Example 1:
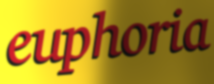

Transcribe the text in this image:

euphoria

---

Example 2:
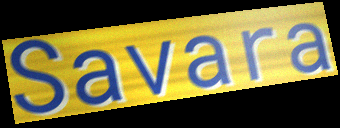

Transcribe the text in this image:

Savara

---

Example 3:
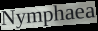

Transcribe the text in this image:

Nymphaea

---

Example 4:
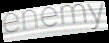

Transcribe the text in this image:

enemy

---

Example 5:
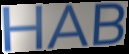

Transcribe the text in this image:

HAB